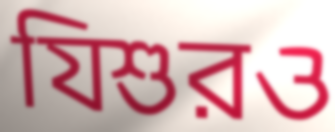
যিশুরও